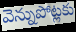
వెన్నుపోట్లకు